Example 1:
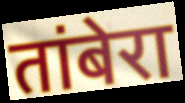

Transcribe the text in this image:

तांबेरा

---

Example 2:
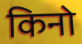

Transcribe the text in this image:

किनो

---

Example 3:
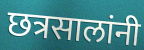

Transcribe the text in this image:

छत्रसालांनी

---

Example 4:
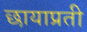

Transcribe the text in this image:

छायाप्रती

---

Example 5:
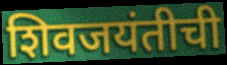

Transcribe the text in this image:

शिवजयंतीची